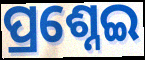
ପ୍ରଶ୍ନେଇ